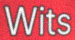
Wits